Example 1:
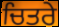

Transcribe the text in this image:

ਚਿਤਰੇ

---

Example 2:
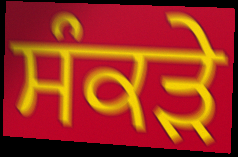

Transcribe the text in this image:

ਸੰਕੜੇ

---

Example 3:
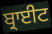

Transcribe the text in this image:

ਬ੍ਰਾਈਟ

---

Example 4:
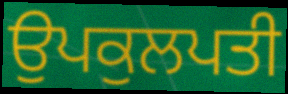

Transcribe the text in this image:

ਉਪਕੁਲਪਤੀ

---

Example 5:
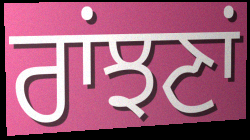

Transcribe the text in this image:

ਰਾਂਝਣਾਂ